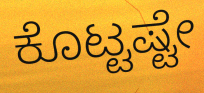
ಕೊಟ್ಟಷ್ಟೇ